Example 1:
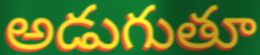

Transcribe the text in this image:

అడుగుతూ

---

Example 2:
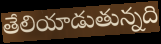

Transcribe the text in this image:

తేలియాడుతున్నది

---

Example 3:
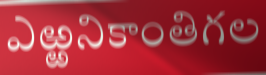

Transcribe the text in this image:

ఎఱ్ఱనికాంతిగల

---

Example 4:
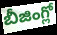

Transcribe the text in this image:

బీజింగ్లో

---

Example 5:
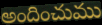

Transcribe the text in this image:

అందించుము